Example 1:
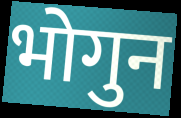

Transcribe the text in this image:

भोगुन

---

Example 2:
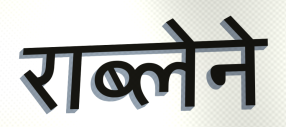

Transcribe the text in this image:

राब्लेने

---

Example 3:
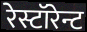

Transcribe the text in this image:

रेस्टॉरेन्ट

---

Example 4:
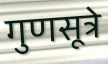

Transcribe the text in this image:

गुणसूत्रे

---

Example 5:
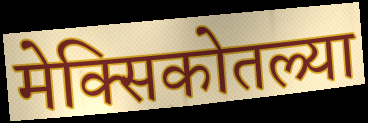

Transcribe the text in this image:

मेक्सिकोतल्या